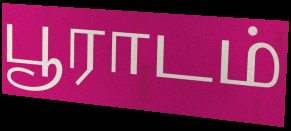
பூராடம்